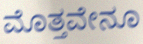
ಮೊತ್ತವೇನೂ